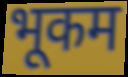
भूकम